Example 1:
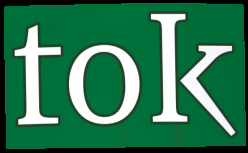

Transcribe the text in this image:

tok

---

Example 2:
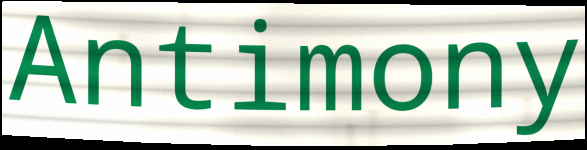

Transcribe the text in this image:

Antimony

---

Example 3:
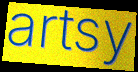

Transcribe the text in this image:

artsy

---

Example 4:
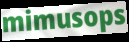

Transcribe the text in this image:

mimusops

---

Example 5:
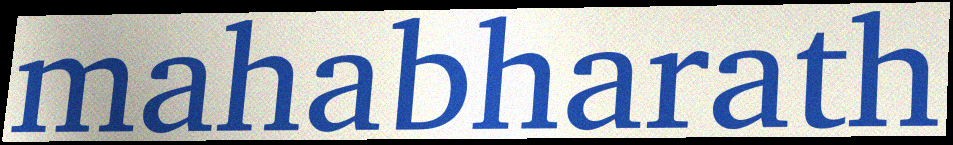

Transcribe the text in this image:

mahabharath